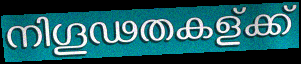
നിഗൂഢതകള്ക്ക്